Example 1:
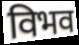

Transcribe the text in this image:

विभव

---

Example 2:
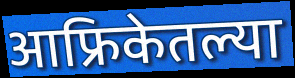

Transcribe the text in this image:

आफ्रिकेतल्या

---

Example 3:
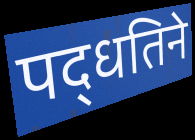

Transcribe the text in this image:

पद्धतिने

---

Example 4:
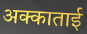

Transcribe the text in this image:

अक्काताई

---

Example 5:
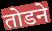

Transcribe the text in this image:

तोडने